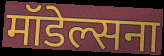
मॉडेल्सना